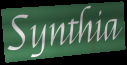
Synthia